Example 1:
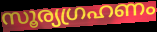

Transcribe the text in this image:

സൂര്യഗ്രഹണം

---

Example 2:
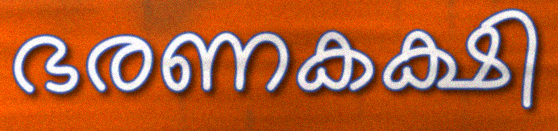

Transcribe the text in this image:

ഭരണകക്ഷി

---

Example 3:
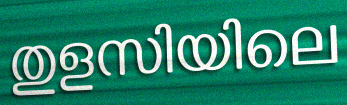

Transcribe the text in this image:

തുളസിയിലെ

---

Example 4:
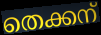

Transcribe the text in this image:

തെക്കന്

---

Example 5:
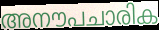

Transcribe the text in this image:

അനൗപചാരിക